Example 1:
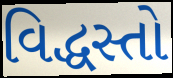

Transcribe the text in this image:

વિદ્ધસ્તો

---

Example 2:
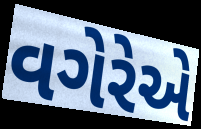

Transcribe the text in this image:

વગેરેએ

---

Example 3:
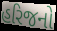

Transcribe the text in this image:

હરિજનો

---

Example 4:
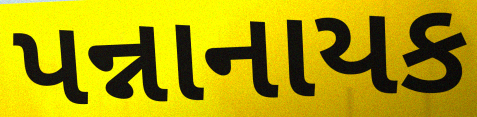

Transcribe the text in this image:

પન્નાનાયક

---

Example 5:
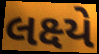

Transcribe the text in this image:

લક્ષ્યે